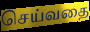
செய்வதை